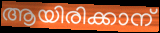
ആയിരിക്കാന്